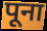
पूना